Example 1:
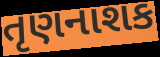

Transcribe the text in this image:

તૃણનાશક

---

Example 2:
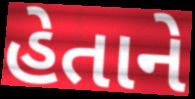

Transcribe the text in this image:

હેતાને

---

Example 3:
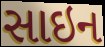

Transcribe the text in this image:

સાઇન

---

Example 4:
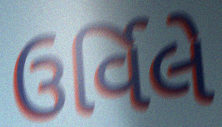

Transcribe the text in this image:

ઉર્વિલે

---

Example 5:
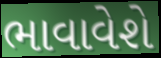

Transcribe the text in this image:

ભાવાવેશે